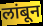
लांबून